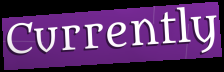
Currently